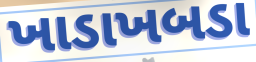
ખાડાખબડા